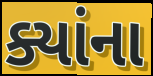
ક્યાંના